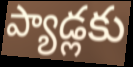
ప్యాడ్లకు